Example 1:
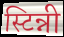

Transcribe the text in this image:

स्टिन्नी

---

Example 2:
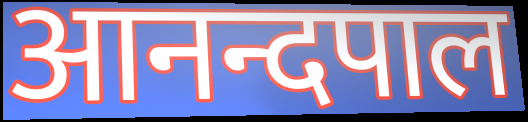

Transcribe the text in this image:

आनन्दपाल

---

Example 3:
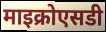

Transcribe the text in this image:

माइक्रोएसडी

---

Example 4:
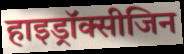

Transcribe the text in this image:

हाइड्रॉक्सीजिन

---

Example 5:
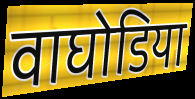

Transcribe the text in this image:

वाघोडिया